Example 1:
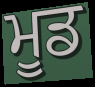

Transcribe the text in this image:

ਮੂਡ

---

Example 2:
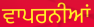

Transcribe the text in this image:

ਵਾਪਰਨੀਆਂ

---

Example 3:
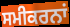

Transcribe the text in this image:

ਸਮੀਕਰਨਾਂ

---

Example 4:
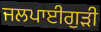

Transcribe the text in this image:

ਜਲਪਾਈਗੁਡ਼ੀ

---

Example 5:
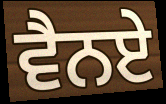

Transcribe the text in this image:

ਵੈਨਏ